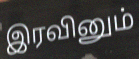
இரவினும்